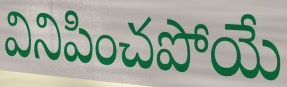
వినిపించపోయే